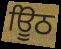
ਊਿਠ